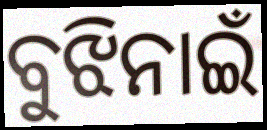
ବୁଝିନାଇଁ